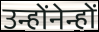
उन्होंनेन्हों